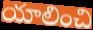
యాలించి